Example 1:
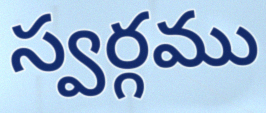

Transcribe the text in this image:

స్వర్గము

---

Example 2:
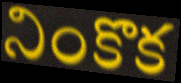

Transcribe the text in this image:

నింకొక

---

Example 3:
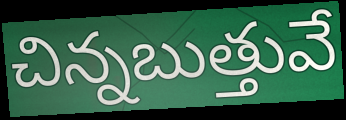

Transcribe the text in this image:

చిన్నబుత్తువే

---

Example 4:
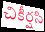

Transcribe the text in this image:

చికీర్షసి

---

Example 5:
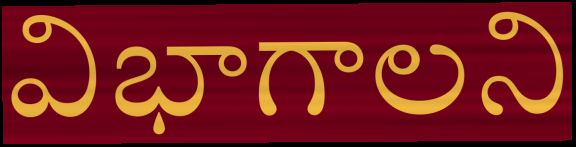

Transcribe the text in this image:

విభాగాలని